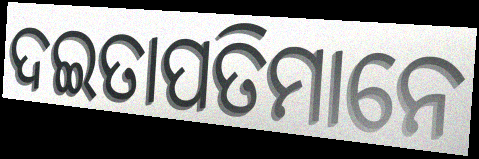
ଦଇତାପତିମାନେ